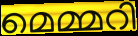
മെമ്മറി